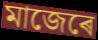
মাজেৰে